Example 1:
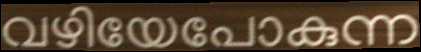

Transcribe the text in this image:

വഴിയേപോകുന്ന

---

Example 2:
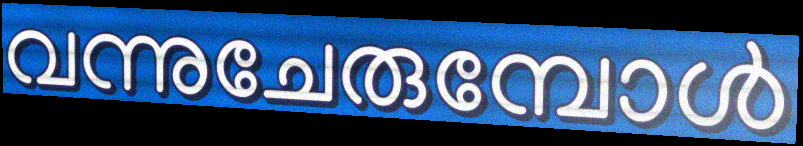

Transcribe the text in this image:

വന്നുചേരുമ്പോൾ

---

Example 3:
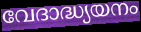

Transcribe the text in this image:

വേദാദ്ധ്യയനം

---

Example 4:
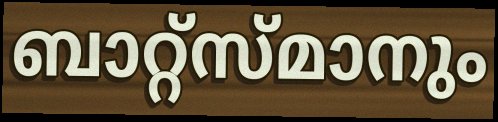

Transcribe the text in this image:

ബാറ്റ്സ്മാനും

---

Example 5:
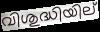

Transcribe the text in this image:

വിശുദ്ധിയില്